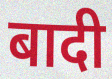
बादी